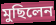
মুছিলেন